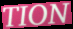
TION